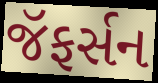
જૅફર્સન